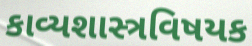
કાવ્યશાસ્ત્રવિષયક